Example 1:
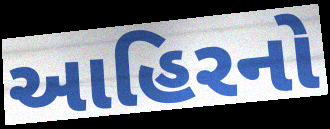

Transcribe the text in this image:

આહિરનો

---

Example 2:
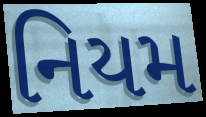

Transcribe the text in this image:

નિયમ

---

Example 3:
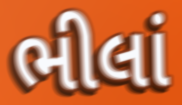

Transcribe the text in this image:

ભીલાં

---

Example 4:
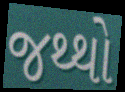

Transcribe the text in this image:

જથ્થો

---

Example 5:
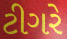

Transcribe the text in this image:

ટીગરે